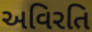
અવિરતિ